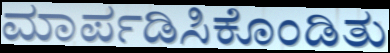
ಮಾರ್ಪಡಿಸಿಕೊಂಡಿತು